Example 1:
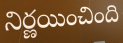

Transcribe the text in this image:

నిర్ణయించింది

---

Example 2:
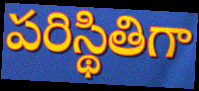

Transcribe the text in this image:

పరిస్థితిగా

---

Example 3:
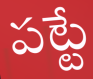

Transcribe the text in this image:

పట్టే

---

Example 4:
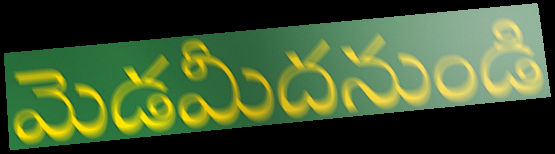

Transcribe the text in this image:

మెడమీదనుండి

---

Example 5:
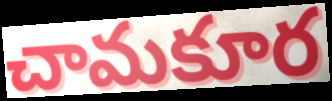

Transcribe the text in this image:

చామకూర